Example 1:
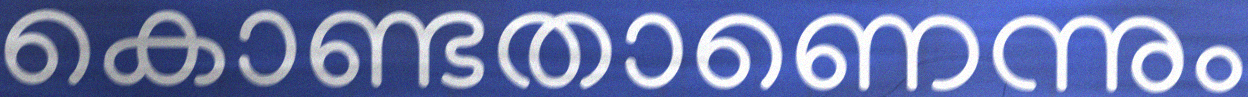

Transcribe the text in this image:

കൊണ്ടതാണെന്നും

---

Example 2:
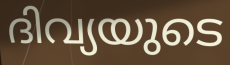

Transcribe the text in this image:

ദിവ്യയുടെ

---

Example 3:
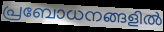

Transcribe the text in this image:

പ്രബോധനങ്ങളിൽ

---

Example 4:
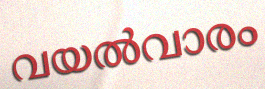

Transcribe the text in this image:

വയൽവാരം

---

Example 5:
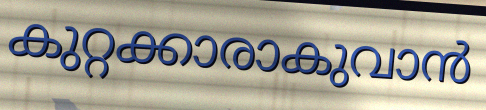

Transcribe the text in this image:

കുറ്റക്കാരാകുവാൻ